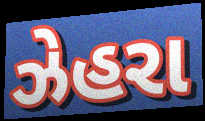
ઝેહરા